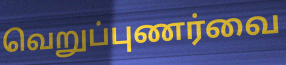
வெறுப்புணர்வை